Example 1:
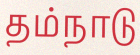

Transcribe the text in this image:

தம்நாடு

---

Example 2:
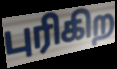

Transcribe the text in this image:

புரிகிற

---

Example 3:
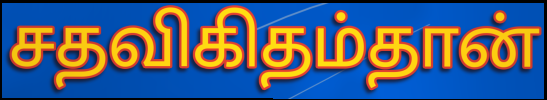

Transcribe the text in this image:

சதவிகிதம்தான்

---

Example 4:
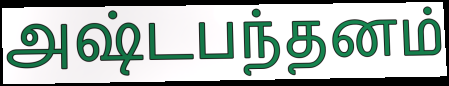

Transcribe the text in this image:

அஷ்டபந்தனம்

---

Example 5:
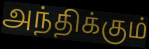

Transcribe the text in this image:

அந்திக்கும்